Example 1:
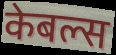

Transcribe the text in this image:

केबल्स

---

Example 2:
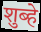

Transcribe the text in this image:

शुब्हे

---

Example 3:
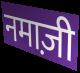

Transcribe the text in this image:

नमाज़ी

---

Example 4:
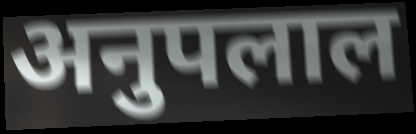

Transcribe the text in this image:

अनुपलाल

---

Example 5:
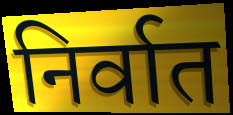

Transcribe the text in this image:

निर्वात